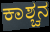
ಕಾಶ್ಚನ